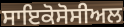
ਸਾਇਕੋਸੋਸੀਅਲ